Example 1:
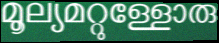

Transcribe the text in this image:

മൂല്യമറ്റുള്ളോരു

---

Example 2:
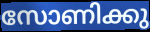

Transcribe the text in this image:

സോണിക്കു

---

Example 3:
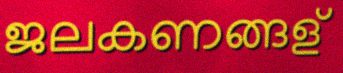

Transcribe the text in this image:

ജലകണങ്ങള്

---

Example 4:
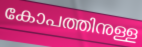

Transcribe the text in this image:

കോപത്തിനുള്ള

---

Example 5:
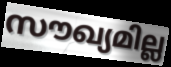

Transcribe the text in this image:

സൗഖ്യമില്ല